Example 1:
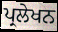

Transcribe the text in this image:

ਪ੍ਰਲੇਖਨ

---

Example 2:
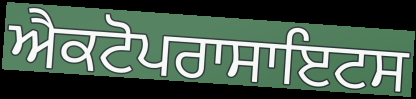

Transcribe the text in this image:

ਐਕਟੋਪਰਾਸਾਇਟਸ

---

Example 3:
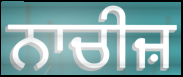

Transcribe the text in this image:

ਨਾਚੀਜ਼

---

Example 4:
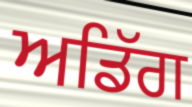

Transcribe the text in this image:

ਅਡਿੱਗ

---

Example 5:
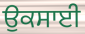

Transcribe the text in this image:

ਉਕਸਾਈ